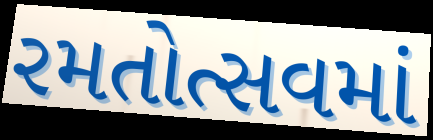
રમતોત્સવમાં